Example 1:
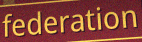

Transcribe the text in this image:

federation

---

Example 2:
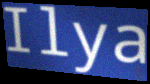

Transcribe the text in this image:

Ilya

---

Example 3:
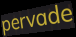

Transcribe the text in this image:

pervade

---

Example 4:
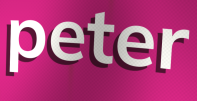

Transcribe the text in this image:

peter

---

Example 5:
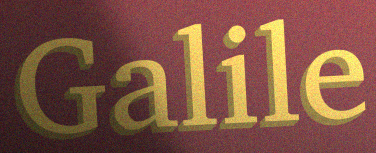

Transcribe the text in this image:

Galile